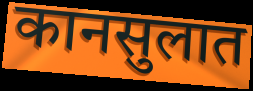
कानसुलात